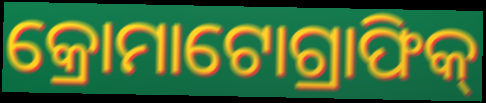
କ୍ରୋମାଟୋଗ୍ରାଫିକ୍